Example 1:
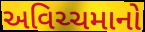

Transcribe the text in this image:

અવિચ્ચમાનો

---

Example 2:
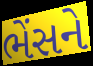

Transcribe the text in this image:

ભેંસને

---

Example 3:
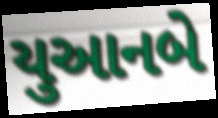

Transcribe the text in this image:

યુઆનબે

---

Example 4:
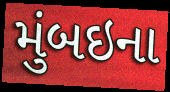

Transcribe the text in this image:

મુંબઇના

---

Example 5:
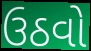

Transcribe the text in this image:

ઉઠવો